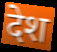
देश